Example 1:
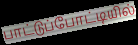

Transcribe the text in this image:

பாட்டுப்போட்டியில்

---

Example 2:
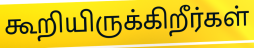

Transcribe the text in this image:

கூறியிருக்கிறீர்கள்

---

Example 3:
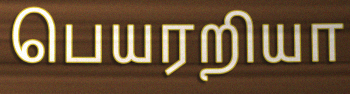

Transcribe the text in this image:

பெயரறியா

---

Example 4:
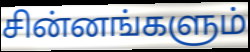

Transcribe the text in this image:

சின்னங்களும்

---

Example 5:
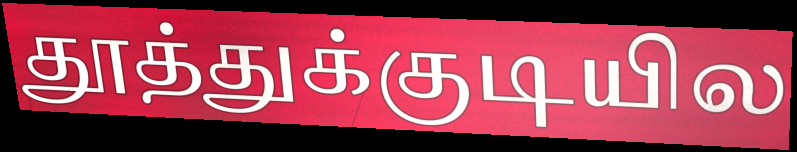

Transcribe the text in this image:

தூத்துக்குடியில